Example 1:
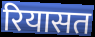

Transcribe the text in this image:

रियासत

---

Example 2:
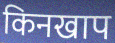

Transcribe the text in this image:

किनखाप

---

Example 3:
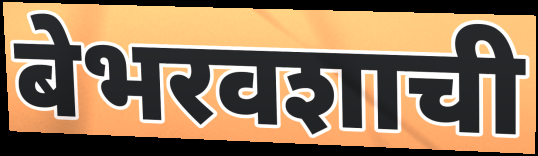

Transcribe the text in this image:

बेभरवशाची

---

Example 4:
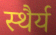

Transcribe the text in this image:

स्थैर्य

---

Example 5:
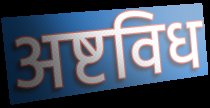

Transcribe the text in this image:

अष्टविध